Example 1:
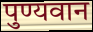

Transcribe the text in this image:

पुण्यवान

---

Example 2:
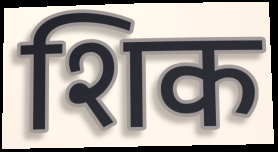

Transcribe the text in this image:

शिक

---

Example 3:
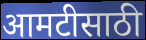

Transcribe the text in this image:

आमटीसाठी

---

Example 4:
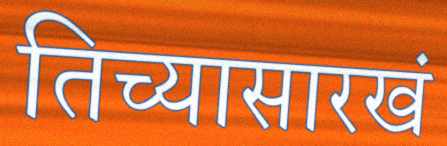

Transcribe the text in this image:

तिच्यासारखं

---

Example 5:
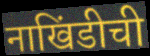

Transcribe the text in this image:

नाखिंडीची